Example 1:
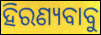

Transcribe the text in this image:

ହିରଣ୍ୟବାବୁ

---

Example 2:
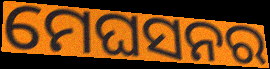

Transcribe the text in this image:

ମେଘସନର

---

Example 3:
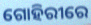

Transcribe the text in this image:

ଗୋହିରୀରେ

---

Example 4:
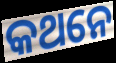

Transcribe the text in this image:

କଥନେ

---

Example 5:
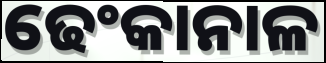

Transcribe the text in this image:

ଢେଂକାନାଳ